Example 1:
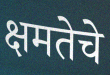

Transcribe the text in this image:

क्षमतेचे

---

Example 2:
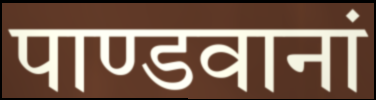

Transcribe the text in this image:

पाण्डवानां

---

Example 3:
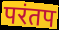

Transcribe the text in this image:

परंतप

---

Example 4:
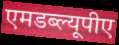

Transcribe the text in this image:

एमडब्ल्यूपीए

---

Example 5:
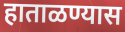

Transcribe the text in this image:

हाताळण्यास